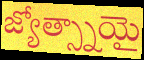
జ్యోత్స్నాయై